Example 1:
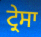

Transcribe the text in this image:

ਟ੍ਰੇਸਾ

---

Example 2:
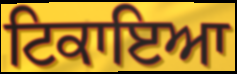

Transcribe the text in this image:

ਟਿਕਾਇਆ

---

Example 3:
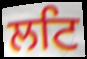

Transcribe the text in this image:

ਲਟਿ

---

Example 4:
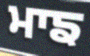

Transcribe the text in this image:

ਮਾਙ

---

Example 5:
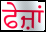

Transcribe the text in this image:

ਫੇਜ਼ਾਂ